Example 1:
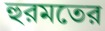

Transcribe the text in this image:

হুরমতের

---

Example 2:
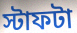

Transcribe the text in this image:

স্টাফটা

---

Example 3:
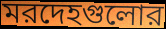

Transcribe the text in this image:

মরদেহগুলোর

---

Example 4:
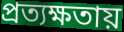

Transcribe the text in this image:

প্রত্যক্ষতায়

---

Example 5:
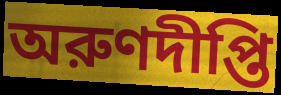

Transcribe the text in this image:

অরুণদীপ্তি